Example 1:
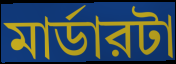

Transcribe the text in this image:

মার্ডারটা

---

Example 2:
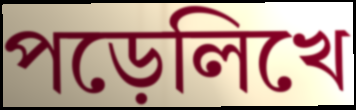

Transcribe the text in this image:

পড়েলিখে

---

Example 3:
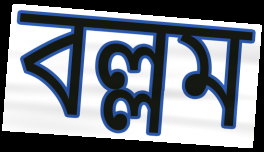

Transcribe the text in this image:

বল্লম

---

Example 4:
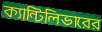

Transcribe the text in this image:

ক্যান্টিলিভারের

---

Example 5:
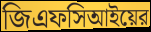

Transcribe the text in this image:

জিএফসিআইয়ের